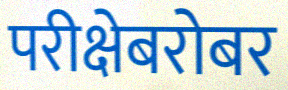
परीक्षेबरोबर